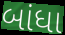
બાંધા